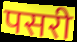
पसरी